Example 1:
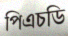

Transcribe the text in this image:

পিএচডি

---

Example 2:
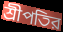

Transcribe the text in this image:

শ্রীপতির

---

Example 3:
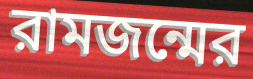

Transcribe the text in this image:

রামজন্মের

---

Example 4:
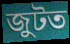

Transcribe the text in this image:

জুটত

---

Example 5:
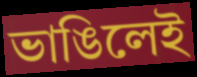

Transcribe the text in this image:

ভাঙিলেই